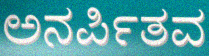
ಅನರ್ಪಿತವ